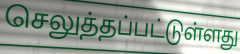
செலுத்தப்பட்டுள்ளது